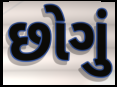
છોગું